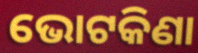
ଭୋଟକିଣା